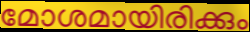
മോശമായിരിക്കും